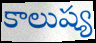
కాలుష్య